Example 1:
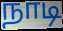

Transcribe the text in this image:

நாடி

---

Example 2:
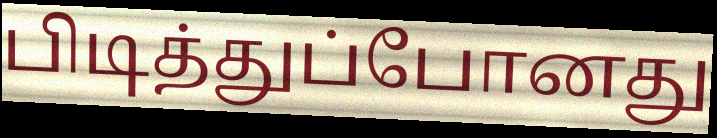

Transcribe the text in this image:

பிடித்துப்போனது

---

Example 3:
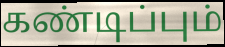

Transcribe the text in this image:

கண்டிப்பும்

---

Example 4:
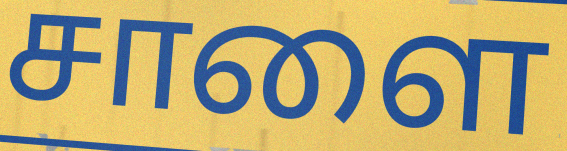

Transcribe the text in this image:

சாளை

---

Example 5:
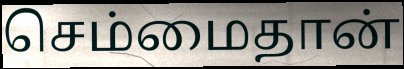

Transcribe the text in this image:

செம்மைதான்